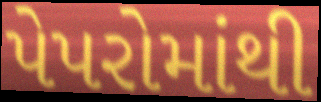
પેપરોમાંથી